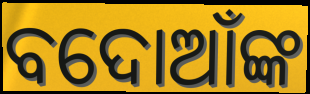
ବଦୋଆଁଙ୍କ